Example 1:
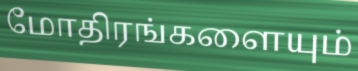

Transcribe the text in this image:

மோதிரங்களையும்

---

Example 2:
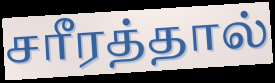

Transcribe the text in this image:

சரீரத்தால்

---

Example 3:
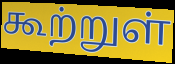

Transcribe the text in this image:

கூற்றுள்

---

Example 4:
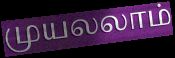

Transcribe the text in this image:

முயலலாம்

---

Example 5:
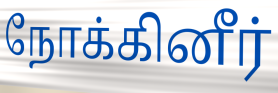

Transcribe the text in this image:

நோக்கினீர்